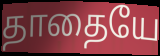
தாதையே